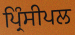
ਪ੍ਰਿੰਸੀਪਲ